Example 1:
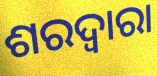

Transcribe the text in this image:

ଶରଦ୍ୱାରା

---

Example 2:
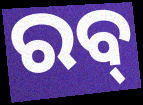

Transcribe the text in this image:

ରବ୍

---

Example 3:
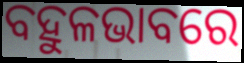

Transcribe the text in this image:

ବହୁଳଭାବରେ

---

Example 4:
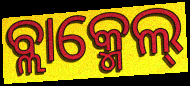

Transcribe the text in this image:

ବ୍ଲାକ୍ମେଲ୍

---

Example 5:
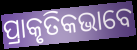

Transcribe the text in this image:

ପ୍ରାକୃତିକଭାବେ